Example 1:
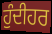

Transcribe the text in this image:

ਹੁੰਦੀਹਰ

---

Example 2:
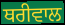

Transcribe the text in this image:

ਥਰੀਵਾਲ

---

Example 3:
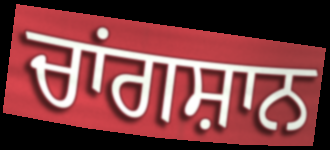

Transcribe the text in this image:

ਚਾਂਗਸ਼ਾਨ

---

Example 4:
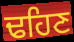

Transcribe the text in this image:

ਢਹਿਣ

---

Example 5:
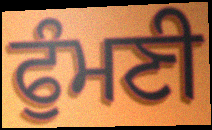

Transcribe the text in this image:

ਫੁੰਮਣੀ